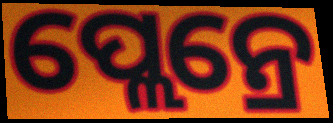
ପ୍ଲେନ୍ରେ